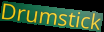
Drumstick